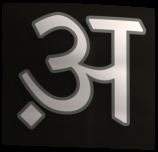
अ़